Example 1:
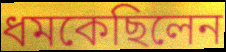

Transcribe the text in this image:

ধমকেছিলেন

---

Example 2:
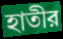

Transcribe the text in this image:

হাতীর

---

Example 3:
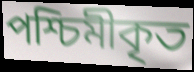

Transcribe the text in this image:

পশ্চিমীকৃত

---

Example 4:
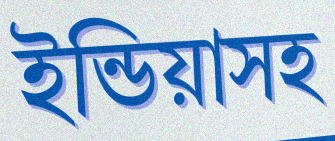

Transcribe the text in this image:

ইন্ডিয়াসহ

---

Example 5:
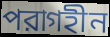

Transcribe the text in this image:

পরাগহীন